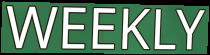
WEEKLY